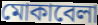
মোকাবেলা